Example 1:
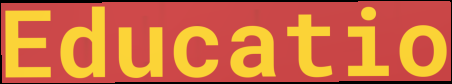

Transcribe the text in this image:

Educatio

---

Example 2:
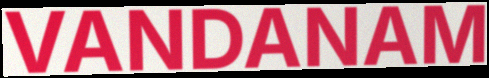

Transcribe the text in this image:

VANDANAM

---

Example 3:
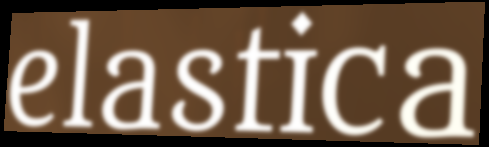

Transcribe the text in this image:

elastica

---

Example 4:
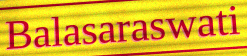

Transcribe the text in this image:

Balasaraswati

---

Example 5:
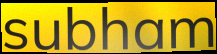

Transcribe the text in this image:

subham